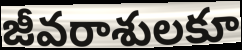
జీవరాశులకూ